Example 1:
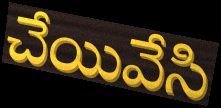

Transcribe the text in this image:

చేయివేసి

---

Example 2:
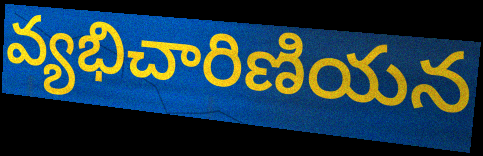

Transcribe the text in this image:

వ్యభిచారిణియన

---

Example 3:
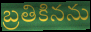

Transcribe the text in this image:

బ్రతికినను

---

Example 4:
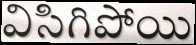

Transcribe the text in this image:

విసిగిపోయి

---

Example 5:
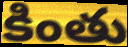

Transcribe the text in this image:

కింతు